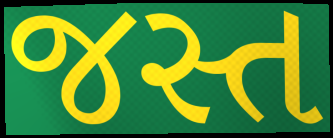
જસ્ત